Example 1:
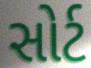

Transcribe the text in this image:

સોર્ટ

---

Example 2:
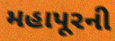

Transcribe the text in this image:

મહાપૂરની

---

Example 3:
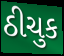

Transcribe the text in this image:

ઠીચુક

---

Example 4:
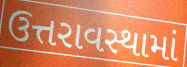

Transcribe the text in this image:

ઉત્તરાવસ્થામાં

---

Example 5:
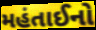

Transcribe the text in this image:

મહંતાઈનો